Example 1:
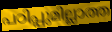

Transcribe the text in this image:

പഠിപ്പുമില്ലാത്ത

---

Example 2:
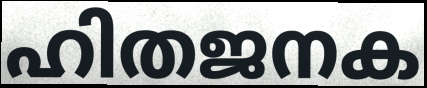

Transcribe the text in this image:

ഹിതജനക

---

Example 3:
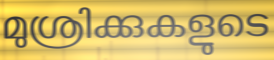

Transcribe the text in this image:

മുശ്രിക്കുകളുടെ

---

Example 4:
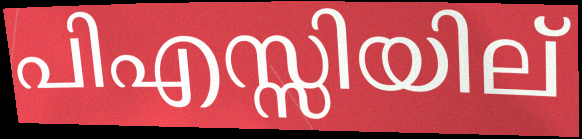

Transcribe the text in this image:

പിഎസ്സിയില്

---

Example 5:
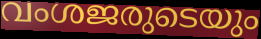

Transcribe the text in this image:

വംശജരുടെയും